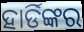
ହାର୍ଡିଙ୍କର